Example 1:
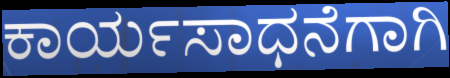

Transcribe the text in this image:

ಕಾರ್ಯಸಾಧನೆಗಾಗಿ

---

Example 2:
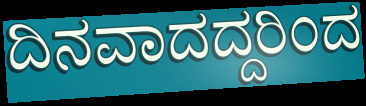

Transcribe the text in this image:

ದಿನವಾದದ್ದರಿಂದ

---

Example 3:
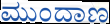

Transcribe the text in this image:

ಮುಂದಾಣ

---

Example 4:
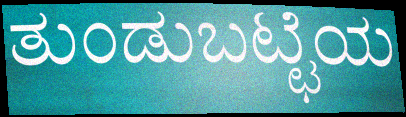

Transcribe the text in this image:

ತುಂಡುಬಟ್ಟೆಯ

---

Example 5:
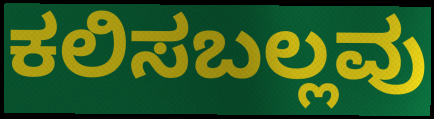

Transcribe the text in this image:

ಕಲಿಸಬಲ್ಲವು